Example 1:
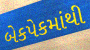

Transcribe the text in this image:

બેકપેકમાંથી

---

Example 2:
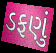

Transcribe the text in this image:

ડફણું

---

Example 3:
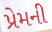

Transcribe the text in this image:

પ્રેમની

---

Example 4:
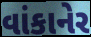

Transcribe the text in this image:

વાંકાનેર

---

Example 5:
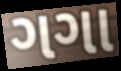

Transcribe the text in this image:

ગગા